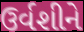
ઉર્વશીને